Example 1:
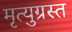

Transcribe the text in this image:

मृत्युग्रस्त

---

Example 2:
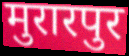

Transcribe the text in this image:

मुरारपुर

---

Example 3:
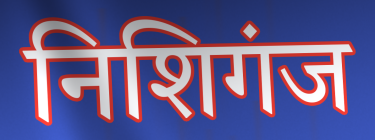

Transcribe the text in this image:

निशिगंज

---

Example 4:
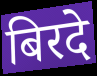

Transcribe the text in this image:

बिरदे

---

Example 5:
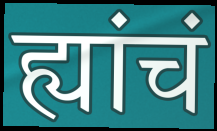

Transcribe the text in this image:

ह्यांचं